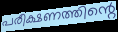
പരീക്ഷണത്തിന്റെ